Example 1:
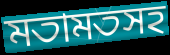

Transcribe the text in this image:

মতামতসহ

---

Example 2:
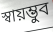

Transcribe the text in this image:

স্বায়ম্ভুব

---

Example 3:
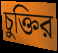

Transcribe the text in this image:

চুক্তির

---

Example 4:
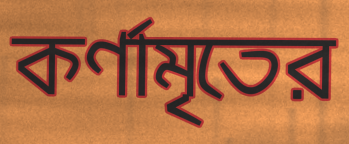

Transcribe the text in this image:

কর্ণামৃতের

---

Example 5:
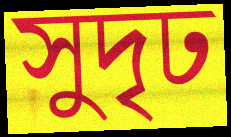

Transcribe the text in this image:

সুদৃঢ